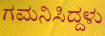
ಗಮನಿಸಿದ್ದಳು